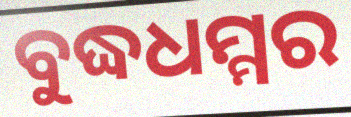
ବୁଦ୍ଧଧମ୍ମର